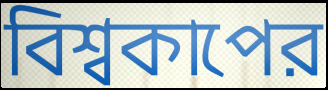
বিশ্বকাপের